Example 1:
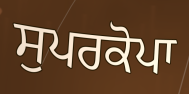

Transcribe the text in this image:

ਸੁਪਰਕੋਪਾ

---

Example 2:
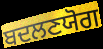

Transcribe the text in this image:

ਬਦਲਣਯੋਗ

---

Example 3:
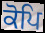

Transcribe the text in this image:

ਕੋਪਿ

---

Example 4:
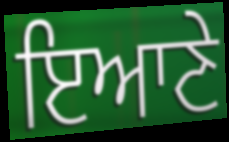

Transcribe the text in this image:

ਇਆਣੇ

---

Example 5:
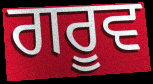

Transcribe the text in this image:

ਗਰੂਵ